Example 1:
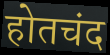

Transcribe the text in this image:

होतचंद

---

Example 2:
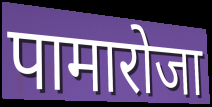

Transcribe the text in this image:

पामारोजा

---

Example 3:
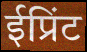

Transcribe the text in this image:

ईप्रिंट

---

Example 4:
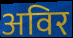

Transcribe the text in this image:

अविर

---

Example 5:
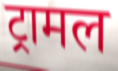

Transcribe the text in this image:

ट्रामल